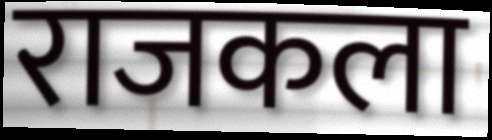
राजकला